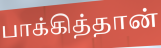
பாக்கித்தான்